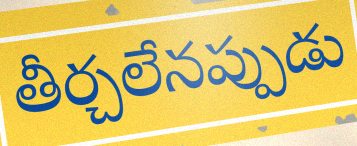
తీర్చలేనప్పుడు